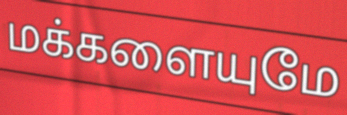
மக்களையுமே